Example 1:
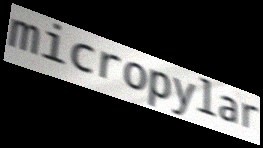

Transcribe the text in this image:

micropylar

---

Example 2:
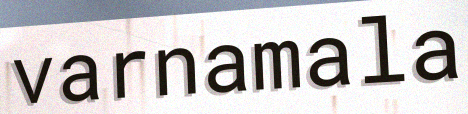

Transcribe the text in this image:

varnamala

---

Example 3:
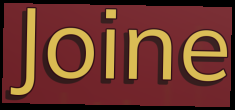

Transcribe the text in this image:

Joine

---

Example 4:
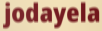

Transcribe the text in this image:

jodayela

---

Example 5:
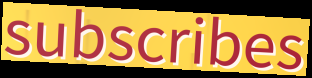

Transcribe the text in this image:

subscribes